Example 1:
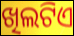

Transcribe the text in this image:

ଖିଲଟିଏ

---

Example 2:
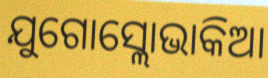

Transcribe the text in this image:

ଯୁଗୋସ୍ଲୋଭାକିଆ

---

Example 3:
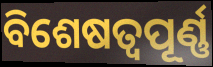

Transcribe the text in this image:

ବିଶେଷତ୍ୱପୂର୍ଣ୍ଣ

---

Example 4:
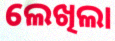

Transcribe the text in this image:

ଲେଖିଲା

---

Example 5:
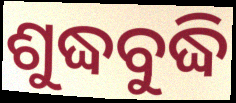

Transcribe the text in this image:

ଶୁଦ୍ଧବୁଦ୍ଧି